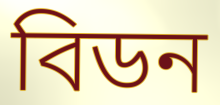
বিডন